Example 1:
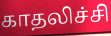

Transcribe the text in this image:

காதலிச்சி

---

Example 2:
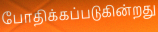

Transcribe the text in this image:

போதிக்கப்படுகின்றது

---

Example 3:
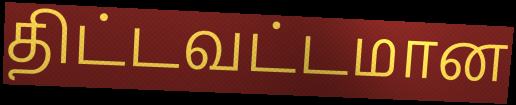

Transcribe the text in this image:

திட்டவட்டமான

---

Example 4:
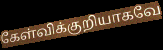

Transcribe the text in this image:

கேள்விக்குறியாகவே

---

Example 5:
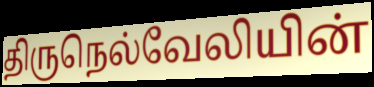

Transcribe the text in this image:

திருநெல்வேலியின்